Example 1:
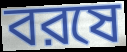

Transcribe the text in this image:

বরষে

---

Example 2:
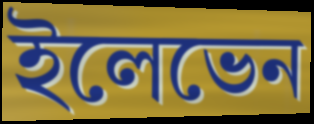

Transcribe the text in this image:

ইলেভেন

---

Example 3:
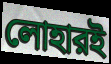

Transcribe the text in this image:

লোহারই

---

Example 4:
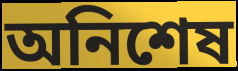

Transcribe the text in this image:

অনিশেষ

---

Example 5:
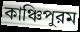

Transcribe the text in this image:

কাঞ্চিপুরম